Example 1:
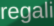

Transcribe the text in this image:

regali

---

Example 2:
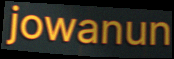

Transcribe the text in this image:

jowanun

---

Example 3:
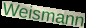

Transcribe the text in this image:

Weismann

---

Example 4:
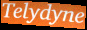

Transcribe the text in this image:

Telydyne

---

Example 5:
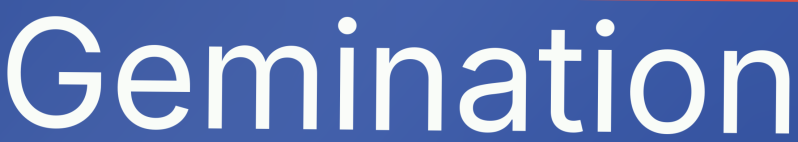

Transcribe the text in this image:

Gemination